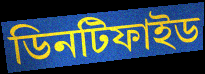
ডিনটিফাইড